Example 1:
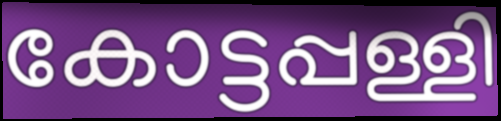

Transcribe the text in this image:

കോട്ടപ്പള്ളി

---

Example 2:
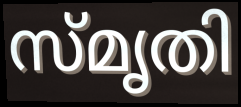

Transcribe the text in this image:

സ്മൃതി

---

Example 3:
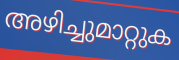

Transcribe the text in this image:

അഴിച്ചുമാറ്റുക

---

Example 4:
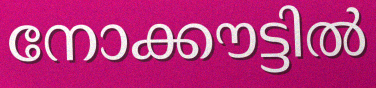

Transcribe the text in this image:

നോക്കൗട്ടിൽ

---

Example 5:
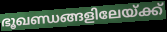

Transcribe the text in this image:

ഭൂഖണ്ഡങ്ങളിലേയ്ക്ക്